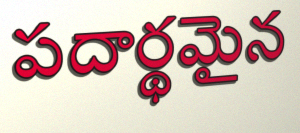
పదార్థమైన